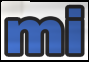
mi